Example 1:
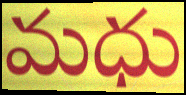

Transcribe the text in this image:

మధు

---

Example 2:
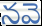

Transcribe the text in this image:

నవె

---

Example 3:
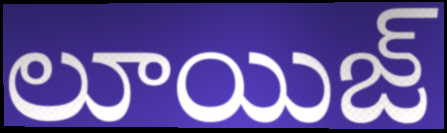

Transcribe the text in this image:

లూయిజ్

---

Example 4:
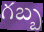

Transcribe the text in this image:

గబ్బ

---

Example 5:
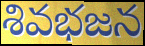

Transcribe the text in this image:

శివభజన